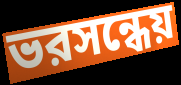
ভরসন্ধেয়